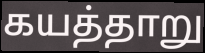
கயத்தாறு